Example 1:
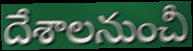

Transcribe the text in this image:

దేశాలనుంచీ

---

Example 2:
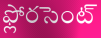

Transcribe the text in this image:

ఫ్లోరసెంట్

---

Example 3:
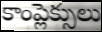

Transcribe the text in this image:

కాంప్లెక్సులు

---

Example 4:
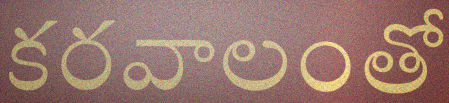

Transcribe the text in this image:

కరవాలంతో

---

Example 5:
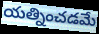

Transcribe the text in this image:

యత్నించడమే